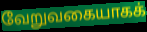
வேறுவகையாகக்